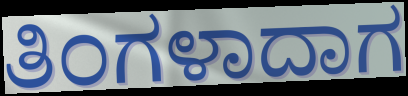
ತಿಂಗಳಾದಾಗ